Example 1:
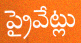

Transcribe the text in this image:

ప్రైవేట్లు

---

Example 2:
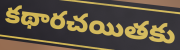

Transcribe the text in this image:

కథారచయితకు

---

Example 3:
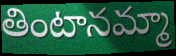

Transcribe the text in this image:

తింటానమ్మా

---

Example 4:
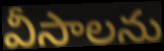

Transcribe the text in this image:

వీసాలను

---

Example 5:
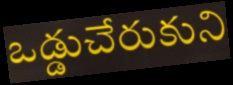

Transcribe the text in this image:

ఒడ్డుచేరుకుని